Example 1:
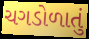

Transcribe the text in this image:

ચગડોળાતું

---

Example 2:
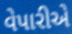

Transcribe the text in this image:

વેપારીએ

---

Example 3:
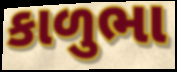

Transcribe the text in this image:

કાળુભા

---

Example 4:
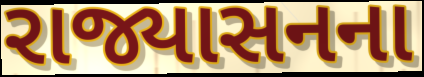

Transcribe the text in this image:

રાજ્યાસનના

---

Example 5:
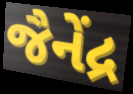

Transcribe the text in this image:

જૈનેંદ્ર